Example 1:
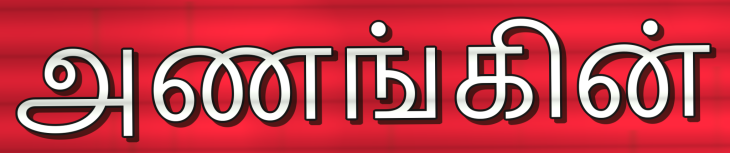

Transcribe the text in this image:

அணங்கின்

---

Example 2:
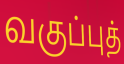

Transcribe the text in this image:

வகுப்புத்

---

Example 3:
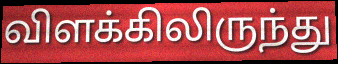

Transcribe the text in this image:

விளக்கிலிருந்து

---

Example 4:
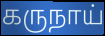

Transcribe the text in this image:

கருநாய்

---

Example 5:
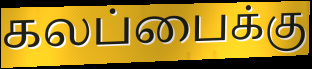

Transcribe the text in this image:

கலப்பைக்கு